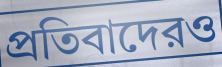
প্রতিবাদেরও